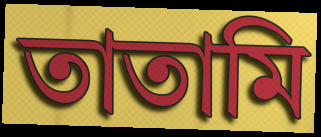
তাতামি